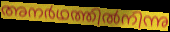
അനർഥത്തിൽനിന്നു